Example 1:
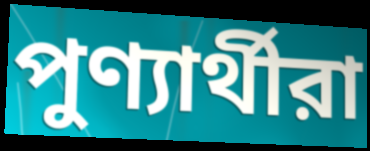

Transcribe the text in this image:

পুণ্যার্থীরা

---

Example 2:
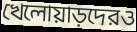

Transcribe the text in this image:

খেলোয়াড়দেরও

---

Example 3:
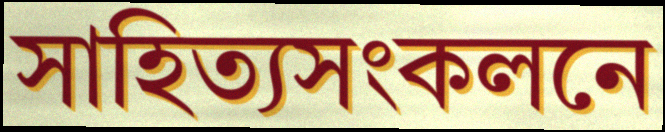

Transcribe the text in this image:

সাহিত্যসংকলনে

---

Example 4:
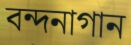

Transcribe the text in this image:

বন্দনাগান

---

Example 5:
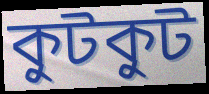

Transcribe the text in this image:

কুটকুট